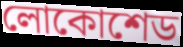
লোকোশেড